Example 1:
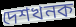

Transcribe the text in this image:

দেশখনক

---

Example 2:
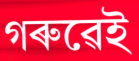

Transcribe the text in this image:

গৰুৱেই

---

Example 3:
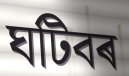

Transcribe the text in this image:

ঘটিবৰ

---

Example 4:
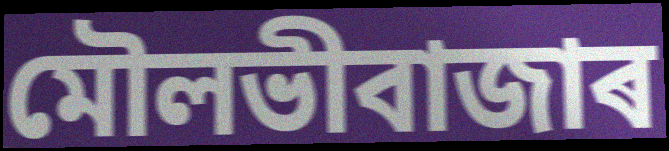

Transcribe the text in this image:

মৌলভীবাজাৰ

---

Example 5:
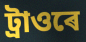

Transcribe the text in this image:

ট্ৰাওৰে